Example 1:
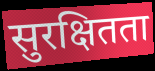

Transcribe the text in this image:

सुरक्षितता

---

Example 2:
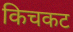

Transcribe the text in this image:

किचकट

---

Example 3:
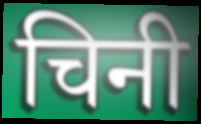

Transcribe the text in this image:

चिनी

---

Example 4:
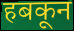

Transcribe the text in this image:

हबकून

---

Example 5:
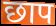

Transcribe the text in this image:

छाप